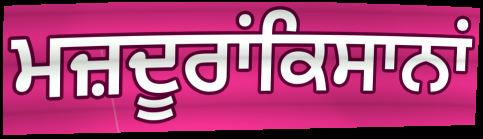
ਮਜ਼ਦੂਰਾਂਕਿਸਾਨਾਂ